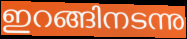
ഇറങ്ങിനടന്നു